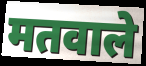
मतवाले